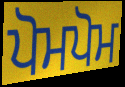
ਪੋਮਪੋਮ